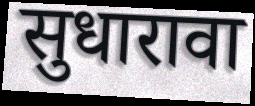
सुधारावा